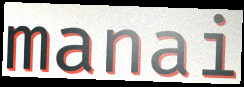
manai